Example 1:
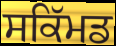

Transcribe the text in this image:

ਸਕਿੱਮਡ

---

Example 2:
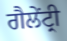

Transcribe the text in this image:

ਗੈਲੇਂਟ੍ਰੀ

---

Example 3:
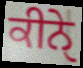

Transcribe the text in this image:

ਕੀਨੇੑ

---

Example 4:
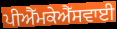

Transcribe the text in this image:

ਪੀਐੱਮਕੇਐੱਸਵਾਈ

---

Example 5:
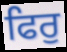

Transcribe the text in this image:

ਫਿਰੁ